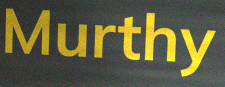
Murthy